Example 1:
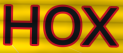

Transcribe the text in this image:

HOX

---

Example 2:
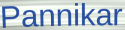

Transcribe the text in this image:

Pannikar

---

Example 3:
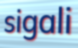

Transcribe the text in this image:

sigali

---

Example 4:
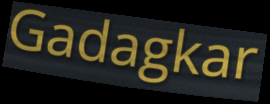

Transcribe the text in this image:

Gadagkar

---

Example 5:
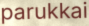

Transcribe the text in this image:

parukkai